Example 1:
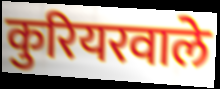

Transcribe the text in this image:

कुरियरवाले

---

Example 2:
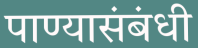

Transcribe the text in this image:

पाण्यासंबंधी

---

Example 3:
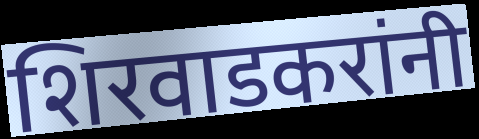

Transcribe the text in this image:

शिरवाडकरांनी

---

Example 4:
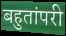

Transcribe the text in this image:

बहुतांपरी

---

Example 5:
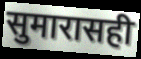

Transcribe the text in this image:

सुमारासही